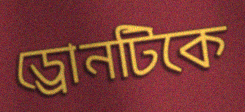
ড্রোনটিকে